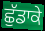
ਛੁੱਡਾਕੇ